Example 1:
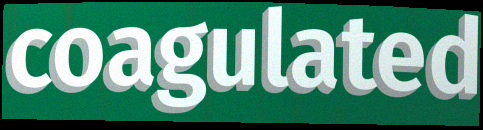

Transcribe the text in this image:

coagulated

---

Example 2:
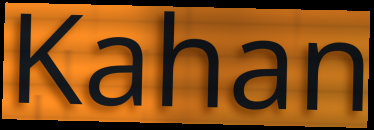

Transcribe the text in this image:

Kahan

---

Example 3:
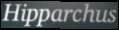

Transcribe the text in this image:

Hipparchus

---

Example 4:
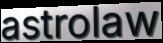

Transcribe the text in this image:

astrolaw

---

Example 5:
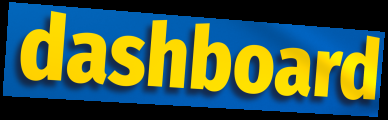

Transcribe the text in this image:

dashboard